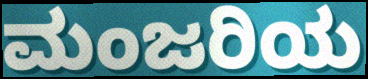
ಮಂಜರಿಯ